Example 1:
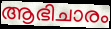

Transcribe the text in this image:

ആഭിചാരം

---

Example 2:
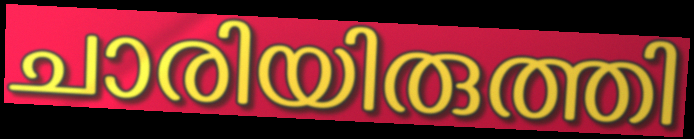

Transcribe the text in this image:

ചാരിയിരുത്തി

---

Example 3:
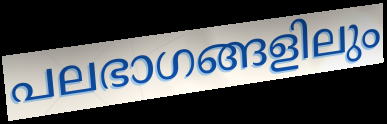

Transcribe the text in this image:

പലഭാഗങ്ങളിലും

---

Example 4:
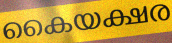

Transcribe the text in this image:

കൈയക്ഷര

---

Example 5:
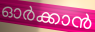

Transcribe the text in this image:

ഓർക്കാൻ